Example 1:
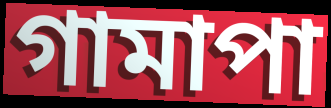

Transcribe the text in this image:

গামাপা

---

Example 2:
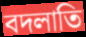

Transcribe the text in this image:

বদলাতি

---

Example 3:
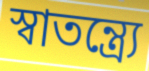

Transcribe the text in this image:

স্বাতন্ত্র্যে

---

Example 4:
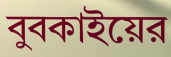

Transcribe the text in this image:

বুবকাইয়ের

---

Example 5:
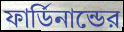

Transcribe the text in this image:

ফার্ডিনান্ডের